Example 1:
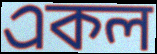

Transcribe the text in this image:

একল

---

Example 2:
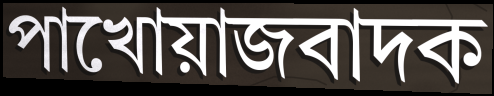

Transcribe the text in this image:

পাখোয়াজবাদক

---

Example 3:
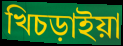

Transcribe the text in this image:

খিচড়াইয়া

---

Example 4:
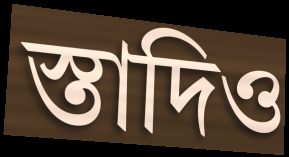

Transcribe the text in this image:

স্তাদিও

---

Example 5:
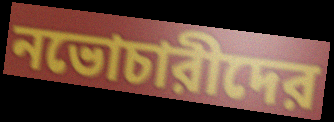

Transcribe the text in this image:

নভোচারীদের